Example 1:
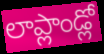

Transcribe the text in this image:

లాప్లాండ్లో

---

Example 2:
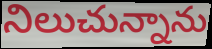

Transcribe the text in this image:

నిలుచున్నాను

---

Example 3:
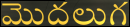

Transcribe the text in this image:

మొదలుగ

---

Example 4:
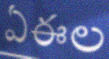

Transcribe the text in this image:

ఏఈల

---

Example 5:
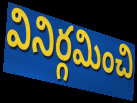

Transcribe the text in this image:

వినిర్గమించి